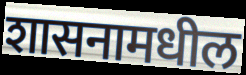
शासनामधील